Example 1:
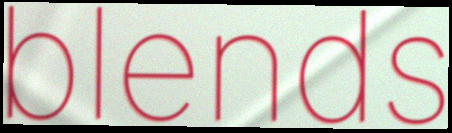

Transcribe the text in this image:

blends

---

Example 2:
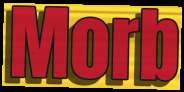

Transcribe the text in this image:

Morb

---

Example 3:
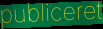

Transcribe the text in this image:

publiceret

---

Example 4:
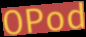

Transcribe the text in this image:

OPod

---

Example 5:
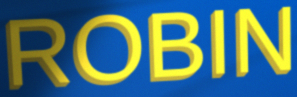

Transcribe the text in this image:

ROBIN